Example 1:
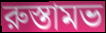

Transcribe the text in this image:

রুস্তামভ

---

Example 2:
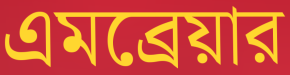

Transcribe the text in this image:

এমব্রেয়ার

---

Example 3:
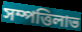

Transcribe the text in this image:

সম্পত্তিলাভ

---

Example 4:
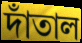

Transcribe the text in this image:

দাঁতাল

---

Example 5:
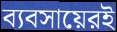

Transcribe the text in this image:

ব্যবসায়েরই